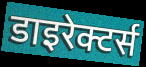
डाइरेक्टर्स